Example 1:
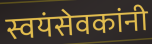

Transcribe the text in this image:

स्वयंसेवकांनी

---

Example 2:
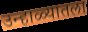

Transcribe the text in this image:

उन्हाळ्यातला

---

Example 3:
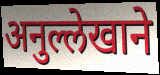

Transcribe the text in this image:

अनुल्लेखाने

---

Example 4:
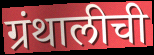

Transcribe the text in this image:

ग्रंथालीची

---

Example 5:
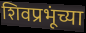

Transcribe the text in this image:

शिवप्रभूंच्या